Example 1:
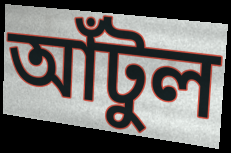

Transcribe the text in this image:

আঁটুল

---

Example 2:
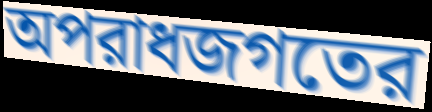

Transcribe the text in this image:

অপরাধজগতের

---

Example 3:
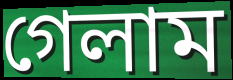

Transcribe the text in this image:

গেলাম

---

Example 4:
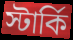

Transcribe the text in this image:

স্টার্কি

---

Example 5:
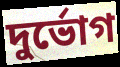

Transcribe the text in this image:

দুর্ভোগ